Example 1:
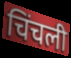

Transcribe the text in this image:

चिंचली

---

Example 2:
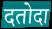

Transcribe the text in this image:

दतोदा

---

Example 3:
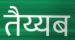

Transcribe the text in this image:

तैय्यब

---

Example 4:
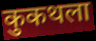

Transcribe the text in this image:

कुकथला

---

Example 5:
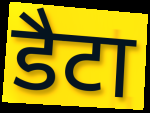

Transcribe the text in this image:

डैटा